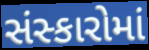
સંસ્કારોમાં